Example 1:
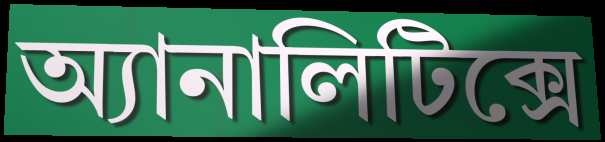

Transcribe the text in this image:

অ্যানালিটিক্সে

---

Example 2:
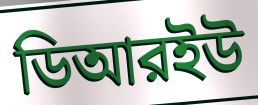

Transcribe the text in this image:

ডিআরইউ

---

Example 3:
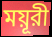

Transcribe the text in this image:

ময়ূরী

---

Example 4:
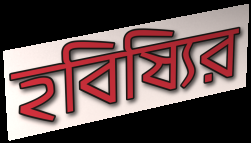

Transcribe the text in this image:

হবিষ্যির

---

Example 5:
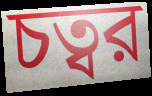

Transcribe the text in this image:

চত্বর